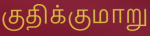
குதிக்குமாறு